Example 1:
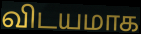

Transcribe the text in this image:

விடயமாக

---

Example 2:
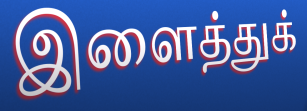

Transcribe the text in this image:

இளைத்துக்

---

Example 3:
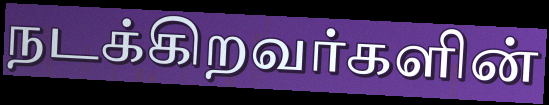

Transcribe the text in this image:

நடக்கிறவர்களின்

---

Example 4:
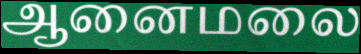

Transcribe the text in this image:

ஆனைமலை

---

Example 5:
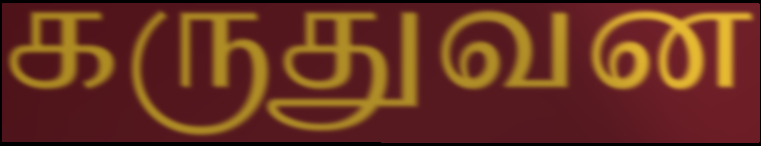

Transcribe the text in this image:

கருதுவன